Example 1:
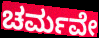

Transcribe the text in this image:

ಚರ್ಮವೇ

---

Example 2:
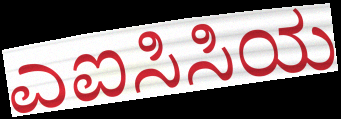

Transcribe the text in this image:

ಎಐಸಿಸಿಯ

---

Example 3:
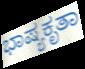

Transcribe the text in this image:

ಭಾಷ್ಯಕೃತಾ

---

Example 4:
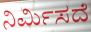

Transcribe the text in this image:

ನಿರ್ಮಿಸದೆ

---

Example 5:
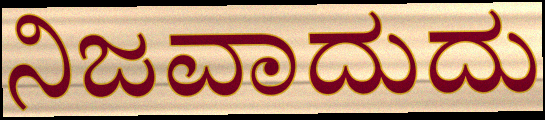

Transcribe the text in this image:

ನಿಜವಾದುದು